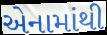
એનામાંથી